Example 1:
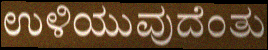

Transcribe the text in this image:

ಉಳಿಯುವುದೆಂತು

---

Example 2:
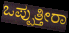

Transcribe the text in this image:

ಒಪ್ಪುತ್ತೀರಾ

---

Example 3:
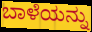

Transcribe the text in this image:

ಬಾಳೆಯನ್ನು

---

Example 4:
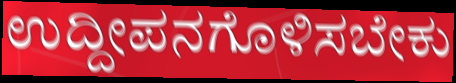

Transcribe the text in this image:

ಉದ್ದೀಪನಗೊಳಿಸಬೇಕು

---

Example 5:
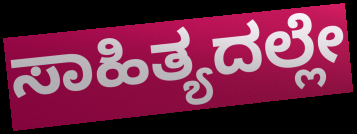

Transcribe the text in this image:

ಸಾಹಿತ್ಯದಲ್ಲೇ